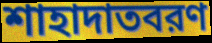
শাহাদাতবরণ